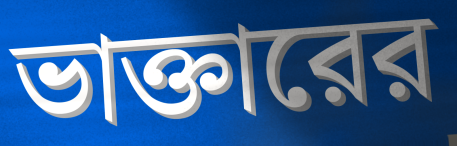
ভাক্তারের